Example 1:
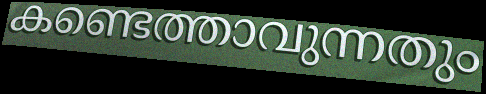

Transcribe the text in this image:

കണ്ടെത്താവുന്നതും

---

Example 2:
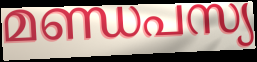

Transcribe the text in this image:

മണ്ഡപസ്യ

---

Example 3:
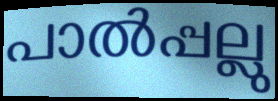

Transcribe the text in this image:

പാൽപ്പല്ലു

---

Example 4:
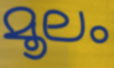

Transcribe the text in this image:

മൂലം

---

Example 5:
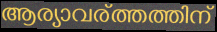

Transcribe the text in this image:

ആര്യാവര്ത്തത്തിന്